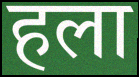
हला